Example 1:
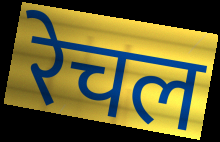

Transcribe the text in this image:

रेचल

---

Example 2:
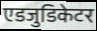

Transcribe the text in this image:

एडजुडिकेटर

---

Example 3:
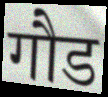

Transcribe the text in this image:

गौड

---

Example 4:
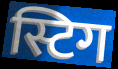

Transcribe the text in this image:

स्टिग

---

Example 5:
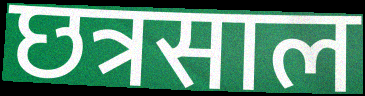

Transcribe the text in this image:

छत्रसाल